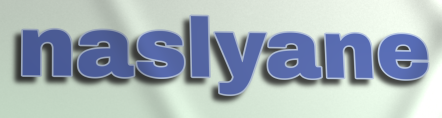
naslyane